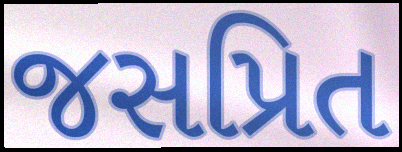
જસપ્રિત